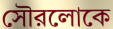
সৌরলোকে